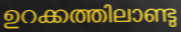
ഉറക്കത്തിലാണ്ടു